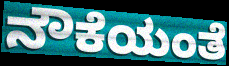
ನೌಕೆಯಂತೆ